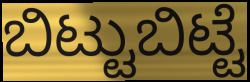
ಬಿಟ್ಟುಬಿಟ್ಟೆ